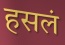
हसलं